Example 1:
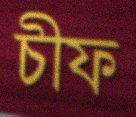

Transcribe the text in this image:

চীফ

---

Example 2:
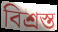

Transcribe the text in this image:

বিশ্রস্ত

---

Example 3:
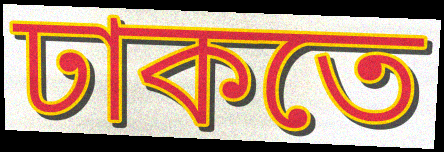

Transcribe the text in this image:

ঢাকতে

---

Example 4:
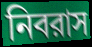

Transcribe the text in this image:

নিবরাস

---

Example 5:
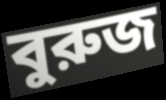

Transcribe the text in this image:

বুরুজ